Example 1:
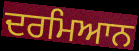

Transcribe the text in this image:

ਦਰਮਿਆਨ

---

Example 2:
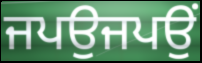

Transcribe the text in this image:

ਜਪਉਜਪਉਂ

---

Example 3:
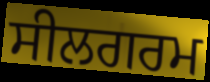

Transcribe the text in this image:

ਸੀਲਗਰਮ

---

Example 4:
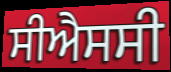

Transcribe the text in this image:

ਸੀਐਸਸੀ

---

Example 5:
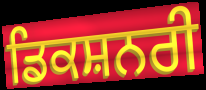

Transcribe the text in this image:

ਡਿਕਸ਼ਨਰੀ